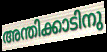
അന്തിക്കാടിനു